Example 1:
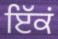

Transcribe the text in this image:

ਇੱਕਂ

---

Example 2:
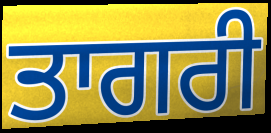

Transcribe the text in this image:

ਤਾਗਰੀ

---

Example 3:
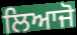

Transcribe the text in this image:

ਲਿਆਜੋ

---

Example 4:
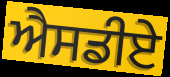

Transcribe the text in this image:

ਐਸਡੀਏ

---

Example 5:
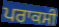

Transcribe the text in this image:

ਪਰਾਕਸੀ